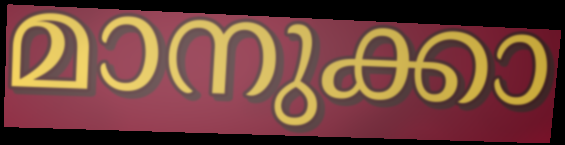
മാനുക്കാ